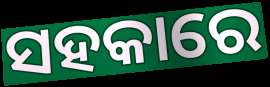
ସହକାରେ